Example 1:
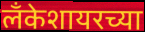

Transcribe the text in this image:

लँकेशायरच्या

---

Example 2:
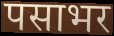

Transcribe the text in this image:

पसाभर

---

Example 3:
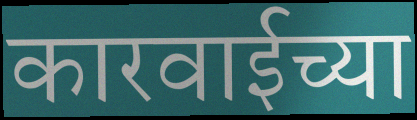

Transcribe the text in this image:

कारवाईच्या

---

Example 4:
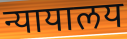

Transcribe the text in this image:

न्यायालय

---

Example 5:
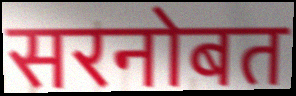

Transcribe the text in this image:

सरनोबत